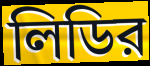
লিডির